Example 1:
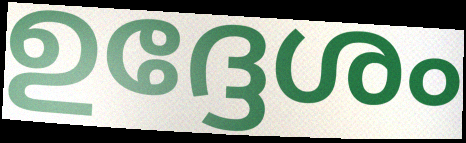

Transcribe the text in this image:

ഉദ്ദേശം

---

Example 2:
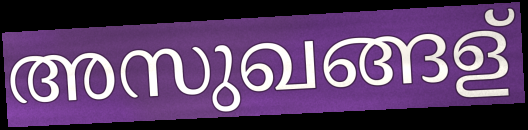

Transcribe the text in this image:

അസുഖങ്ങള്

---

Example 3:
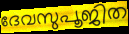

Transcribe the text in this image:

ദേവസുപൂജിത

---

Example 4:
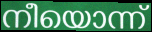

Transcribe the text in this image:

നീയൊന്ന്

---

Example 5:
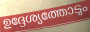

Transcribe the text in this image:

ഉദ്ദേശ്യത്തോടും